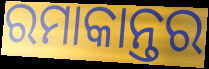
ରମାକାନ୍ତର